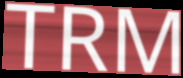
TRM